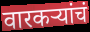
वारकऱ्यांचं